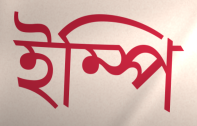
ইম্পি